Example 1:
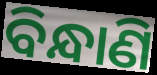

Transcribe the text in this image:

ବିନ୍ଧାଣି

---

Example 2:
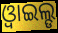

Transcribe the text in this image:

ଓ୍ବାଇଲ୍ଡ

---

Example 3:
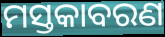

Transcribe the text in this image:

ମସ୍ତକାବରଣ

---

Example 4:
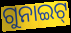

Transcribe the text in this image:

ଗୁନାଇଟ୍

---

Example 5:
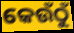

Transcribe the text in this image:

କେଉଁଠୁଁ